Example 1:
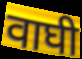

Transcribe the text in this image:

वाघी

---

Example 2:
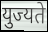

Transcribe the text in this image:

युज्यते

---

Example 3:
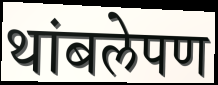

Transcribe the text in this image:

थांबलेपण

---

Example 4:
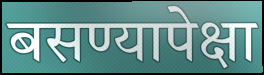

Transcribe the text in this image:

बसण्यापेक्षा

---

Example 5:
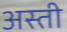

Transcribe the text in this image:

अस्ती